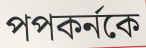
পপকর্নকে